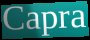
Capra